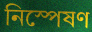
নিস্পেষণ